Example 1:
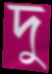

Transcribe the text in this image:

দু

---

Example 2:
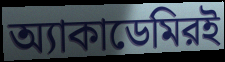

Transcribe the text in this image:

অ্যাকাডেমিরই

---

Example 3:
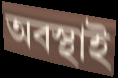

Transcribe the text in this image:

অবস্থাই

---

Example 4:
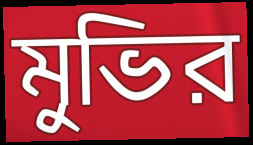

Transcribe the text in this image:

মুভির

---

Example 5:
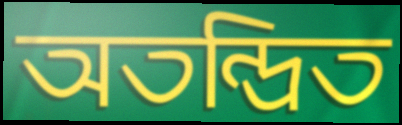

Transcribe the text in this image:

অতন্দ্রিত